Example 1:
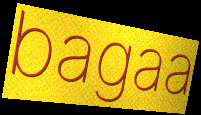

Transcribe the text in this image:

bagaa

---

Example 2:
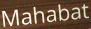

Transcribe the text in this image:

Mahabat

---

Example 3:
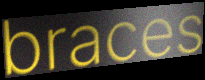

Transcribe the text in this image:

braces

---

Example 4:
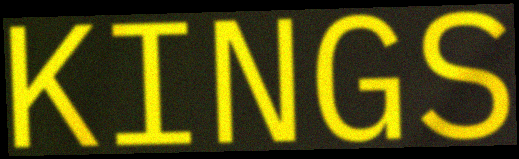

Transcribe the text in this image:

KINGS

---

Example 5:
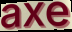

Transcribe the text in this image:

axe